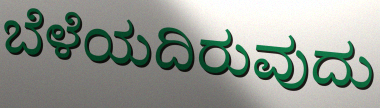
ಬೆಳೆಯದಿರುವುದು